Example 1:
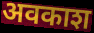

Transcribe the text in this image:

अवकाश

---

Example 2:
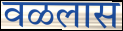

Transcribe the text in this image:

वळलास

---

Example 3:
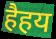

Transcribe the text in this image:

हैहय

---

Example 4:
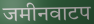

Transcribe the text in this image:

जमीनवाटप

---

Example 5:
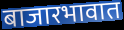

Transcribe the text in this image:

बाजारभावात